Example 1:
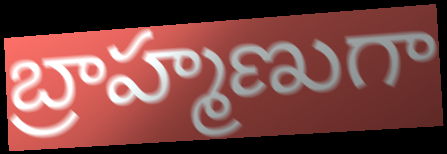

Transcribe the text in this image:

బ్రాహ్మణుగా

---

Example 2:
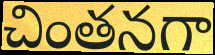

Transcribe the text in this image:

చింతనగా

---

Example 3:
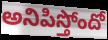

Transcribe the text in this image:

అనిపిస్తోందో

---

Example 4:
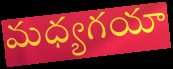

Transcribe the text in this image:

మధ్యగయా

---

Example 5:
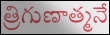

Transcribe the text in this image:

త్రిగుణాత్మనే